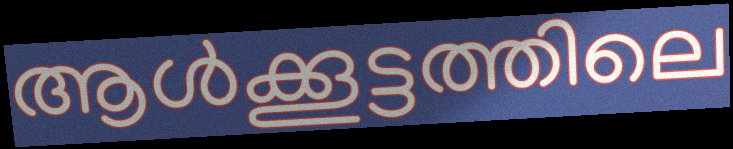
ആൾക്കൂട്ടത്തിലെ